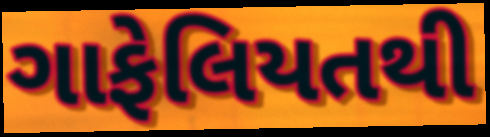
ગાફેલિયતથી